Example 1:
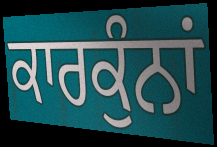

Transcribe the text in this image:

ਕਾਰਕੁੰਨਾਂ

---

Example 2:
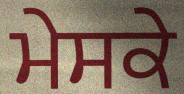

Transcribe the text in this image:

ਮੇਸਕੇ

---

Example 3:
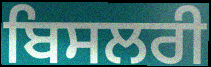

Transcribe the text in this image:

ਬਿਸਲਰੀ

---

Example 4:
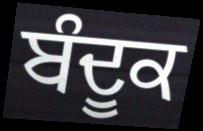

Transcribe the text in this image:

ਬੰਦੂਕ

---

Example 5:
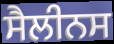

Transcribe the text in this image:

ਸੈਲੀਨਸ